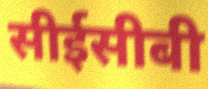
सीईसीबी